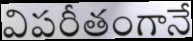
విపరీతంగానే